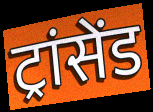
ट्रांसेंड